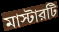
মাস্টারটি